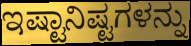
ಇಷ್ಟಾನಿಷ್ಟಗಳನ್ನು